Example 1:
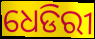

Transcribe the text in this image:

ଧେଡିରୀ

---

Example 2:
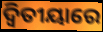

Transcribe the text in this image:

ଦ୍ଵିତୀୟାରେ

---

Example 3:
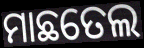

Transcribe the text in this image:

ମାଛତେଲ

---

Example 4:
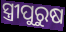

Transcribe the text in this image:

ସ୍ତ୍ରୀପୁରୁଷ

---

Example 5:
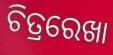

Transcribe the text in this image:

ଚିତ୍ରରେଖା